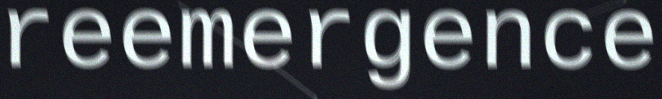
reemergence